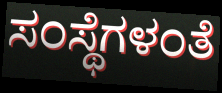
ಸಂಸ್ಥೆಗಳಂತೆ